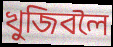
খুজিবলৈ